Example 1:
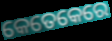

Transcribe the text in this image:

କେତେକେରେ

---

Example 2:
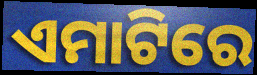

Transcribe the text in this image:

ଏମାଟିରେ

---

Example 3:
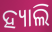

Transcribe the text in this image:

ହ୍ୟାଲି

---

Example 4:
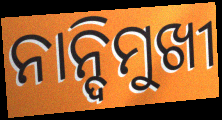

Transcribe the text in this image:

ନାନ୍ଦିମୁଖୀ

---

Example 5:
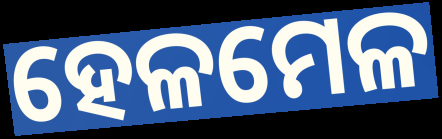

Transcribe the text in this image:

ହେଳମେଳ